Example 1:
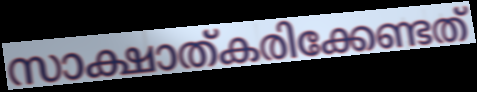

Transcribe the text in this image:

സാക്ഷാത്കരിക്കേണ്ടത്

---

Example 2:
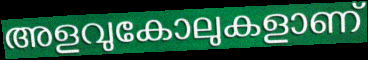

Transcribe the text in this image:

അളവുകോലുകളാണ്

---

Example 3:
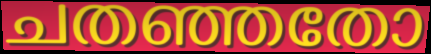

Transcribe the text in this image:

ചതഞ്ഞതോ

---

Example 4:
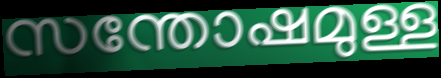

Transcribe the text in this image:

സന്തോഷമുള്ള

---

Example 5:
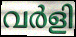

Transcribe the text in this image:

വർളി